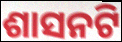
ଶାସନଟି